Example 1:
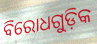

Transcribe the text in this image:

ବିରୋଧଗୁଡ଼ିକ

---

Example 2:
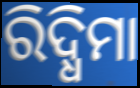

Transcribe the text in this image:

ରିଦ୍ଧିମା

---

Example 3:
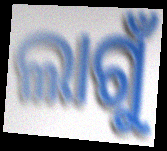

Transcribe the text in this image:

ଲାଗୁଁ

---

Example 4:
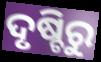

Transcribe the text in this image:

ଦୃଷ୍ଚିରୁ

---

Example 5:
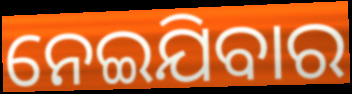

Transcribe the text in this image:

ନେଇଯିବାର